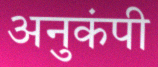
अनुकंपी